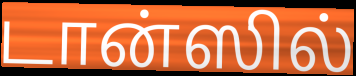
டான்ஸில்